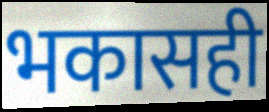
भकासही